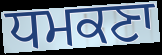
ਧਮਕਣਾ